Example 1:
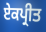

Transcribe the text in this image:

ਏਕਪ੍ਰੀਤ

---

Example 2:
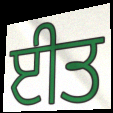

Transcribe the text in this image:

ਈਤ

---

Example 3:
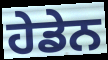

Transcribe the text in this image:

ਹੇਡੇਨ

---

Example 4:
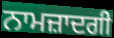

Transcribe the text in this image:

ਨਾਮਜ਼ਾਦਗੀ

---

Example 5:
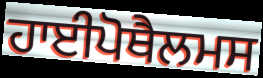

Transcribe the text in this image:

ਹਾਈਪੋਥੈਲਮਸ